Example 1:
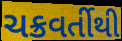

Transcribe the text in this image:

ચક્રવર્તીથી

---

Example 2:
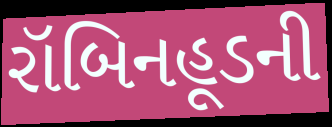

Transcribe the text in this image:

રૉબિનહૂડની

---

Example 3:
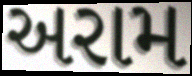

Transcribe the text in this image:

અરામ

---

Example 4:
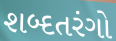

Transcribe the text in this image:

શબ્દતરંગો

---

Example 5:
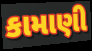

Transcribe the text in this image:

કામાણી